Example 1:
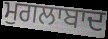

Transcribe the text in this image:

ਮੁਗਲਾਬਾਦ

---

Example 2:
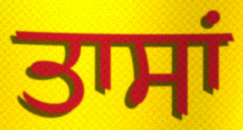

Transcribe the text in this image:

ਤਾਸਾਂ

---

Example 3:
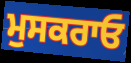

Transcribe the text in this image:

ਮੁਸਕਰਾਓ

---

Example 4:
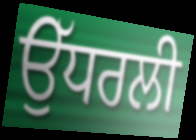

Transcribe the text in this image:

ਉੱਧਰਲੀ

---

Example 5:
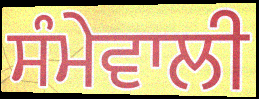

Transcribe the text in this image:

ਸੰਮੇਵਾਲੀ